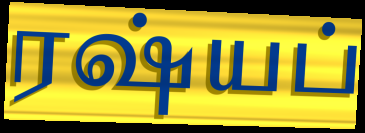
ரஷ்யப்